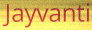
Jayvanti